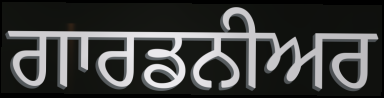
ਗਾਰਡਨੀਅਰ